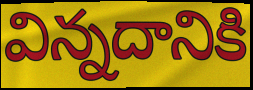
విన్నదానికి